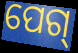
ପେଗ୍